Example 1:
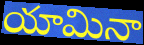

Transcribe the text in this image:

యామినా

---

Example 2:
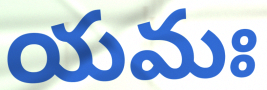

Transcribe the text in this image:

యమః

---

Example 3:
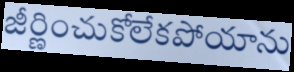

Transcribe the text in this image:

జీర్ణించుకోలేకపోయాను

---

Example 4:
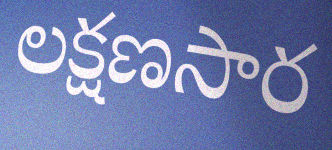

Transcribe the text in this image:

లక్షణసార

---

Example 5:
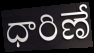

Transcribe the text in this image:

ధారిణే